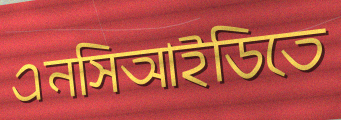
এনসিআইডিতে